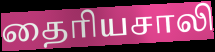
தைரியசாலி